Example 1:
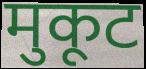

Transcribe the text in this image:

मुकूट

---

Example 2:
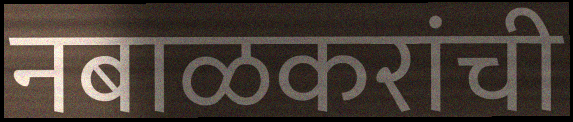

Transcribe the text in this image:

नबाळकरांची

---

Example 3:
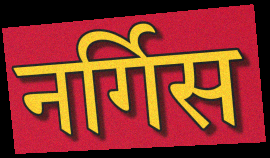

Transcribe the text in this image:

नर्गिस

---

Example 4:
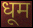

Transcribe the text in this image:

धूम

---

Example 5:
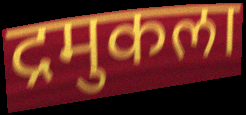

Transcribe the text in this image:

द्रमुकला